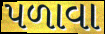
પળાવા